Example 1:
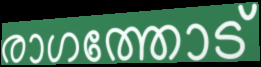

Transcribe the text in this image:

രാഗത്തോട്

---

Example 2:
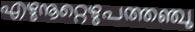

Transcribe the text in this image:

എഴുനൂറ്റെഴുപത്തഞ്ചു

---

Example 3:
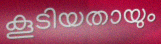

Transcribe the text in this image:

കൂടിയതായും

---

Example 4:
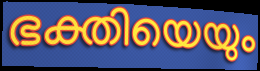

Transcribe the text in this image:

ഭക്തിയെയും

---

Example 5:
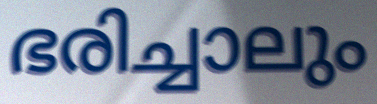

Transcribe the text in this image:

ഭരിച്ചാലും